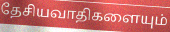
தேசியவாதிகளையும்